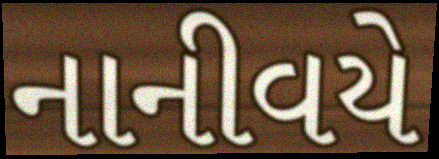
નાનીવયે